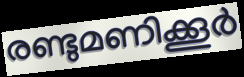
രണ്ടുമണിക്കൂർ